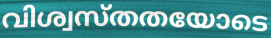
വിശ്വസ്തതയോടെ